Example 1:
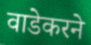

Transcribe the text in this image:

वाडेकरने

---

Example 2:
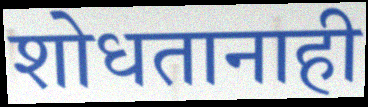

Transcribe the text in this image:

शोधतानाही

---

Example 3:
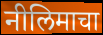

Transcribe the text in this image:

नीलिमाचा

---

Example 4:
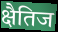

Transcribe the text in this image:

क्षैतिज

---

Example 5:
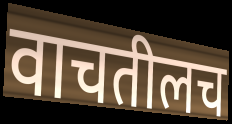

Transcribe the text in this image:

वाचतीलच